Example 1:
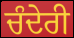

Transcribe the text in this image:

ਚੰਦੇਰੀ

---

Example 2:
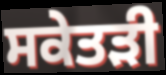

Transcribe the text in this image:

ਸਕੇਤੜੀ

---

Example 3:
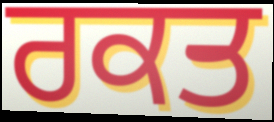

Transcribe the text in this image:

ਰਕਤ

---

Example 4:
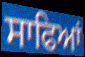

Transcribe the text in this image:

ਸਾਫਿਆਂ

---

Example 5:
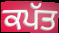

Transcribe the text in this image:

ਕਪੱਤ